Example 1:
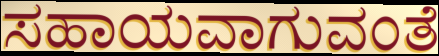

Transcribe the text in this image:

ಸಹಾಯವಾಗುವಂತೆ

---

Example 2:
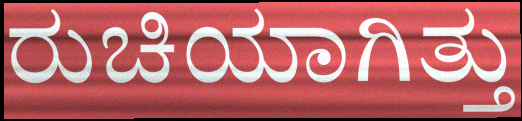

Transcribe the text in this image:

ರುಚಿಯಾಗಿತ್ತು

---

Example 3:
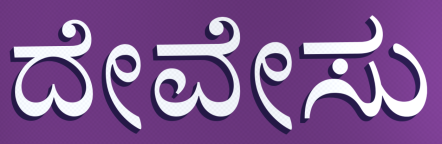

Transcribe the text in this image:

ದೇವೇಸು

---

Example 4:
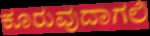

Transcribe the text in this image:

ಕೂರುವುದಾಗಲಿ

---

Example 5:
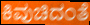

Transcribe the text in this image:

ಕಿವುಚಿದಂತೆ